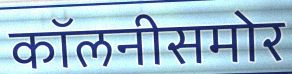
कॉलनीसमोर